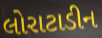
લોરાટાડીન